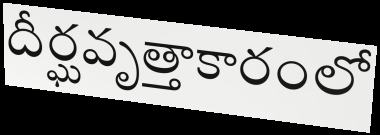
దీర్ఘవృత్తాకారంలో